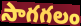
సాగగలం